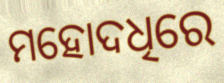
ମହୋଦଧିରେ